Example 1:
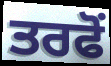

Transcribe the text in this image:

ਤਰਫੋਂ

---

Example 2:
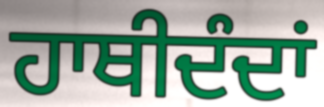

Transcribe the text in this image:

ਹਾਥੀਦੰਦਾਂ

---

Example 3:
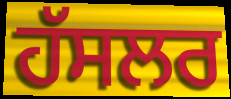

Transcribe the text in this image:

ਹੱਸਲਰ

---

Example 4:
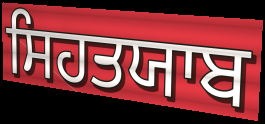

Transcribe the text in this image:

ਸਿਹਤਯਾਬ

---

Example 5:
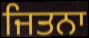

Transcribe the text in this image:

ਜਿਤਨਾ